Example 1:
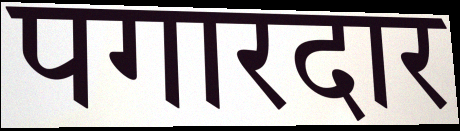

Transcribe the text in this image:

पगारदार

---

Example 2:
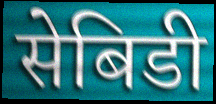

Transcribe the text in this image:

सेबिडी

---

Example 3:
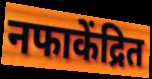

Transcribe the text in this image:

नफाकेंद्रित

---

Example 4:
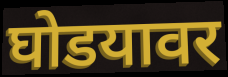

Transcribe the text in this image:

घोडयावर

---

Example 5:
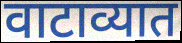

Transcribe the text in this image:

वाटाव्यात